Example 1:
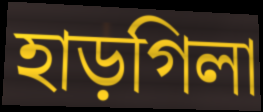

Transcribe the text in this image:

হাড়গিলা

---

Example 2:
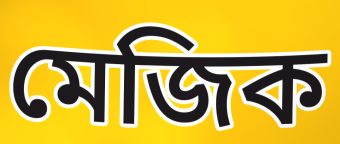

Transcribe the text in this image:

মেজিক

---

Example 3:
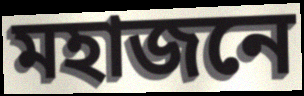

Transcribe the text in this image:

মহাজনে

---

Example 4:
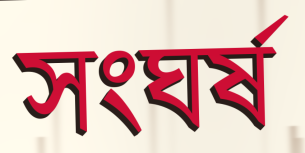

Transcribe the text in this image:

সংঘৰ্ষ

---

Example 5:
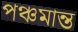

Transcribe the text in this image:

পঞ্চমান্ত